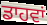
ਡਾਹਵਾਂ